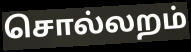
சொல்லறம்